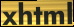
xhtml